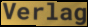
Verlag